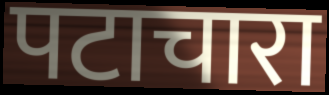
पटाचारा